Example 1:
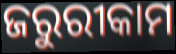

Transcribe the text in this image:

ଜରୁରୀକାମ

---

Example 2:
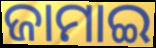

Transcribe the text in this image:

ଜାମାଇ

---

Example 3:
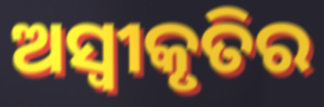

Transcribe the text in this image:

ଅସ୍ୱୀକୃତିର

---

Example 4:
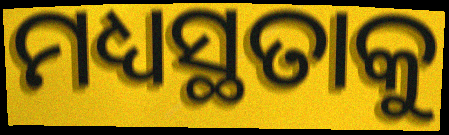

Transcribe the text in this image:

ମଧ୍ୟସ୍ଥତାକୁ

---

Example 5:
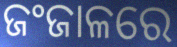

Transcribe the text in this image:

ଜଂଜାଳରେ